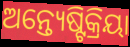
ଅନ୍ତ୍ୟେଷ୍ଟିକ୍ରିୟା